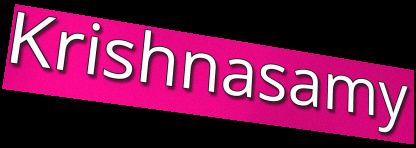
Krishnasamy